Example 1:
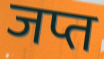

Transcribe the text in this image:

जप्त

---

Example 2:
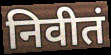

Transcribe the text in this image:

निवीतं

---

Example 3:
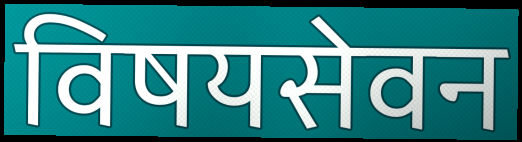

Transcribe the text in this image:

विषयसेवन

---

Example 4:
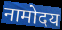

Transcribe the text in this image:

नामोदय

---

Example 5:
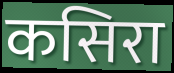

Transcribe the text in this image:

कसिरा